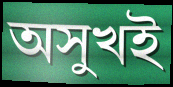
অসুখই